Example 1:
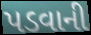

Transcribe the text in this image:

પડવાની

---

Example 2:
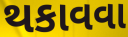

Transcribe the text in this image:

થકાવવા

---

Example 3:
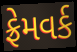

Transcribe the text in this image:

ફ્રેમવર્ક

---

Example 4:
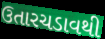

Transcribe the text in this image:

ઉતારચડાવથી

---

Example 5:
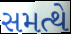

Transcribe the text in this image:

સમત્થે